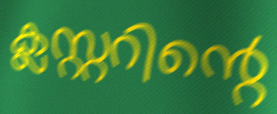
ക്ലസ്റ്ററിന്റെ